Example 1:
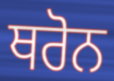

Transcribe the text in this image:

ਥਰੋਨ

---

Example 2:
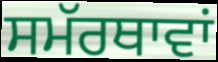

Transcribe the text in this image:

ਸਮੱਰਥਾਵਾਂ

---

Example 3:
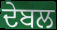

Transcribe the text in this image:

ਦੇਬਲ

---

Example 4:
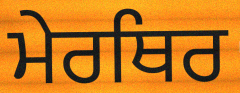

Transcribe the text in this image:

ਮੇਰਥਿਰ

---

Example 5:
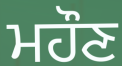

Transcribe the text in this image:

ਮਹੌਣ